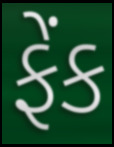
ફેંક